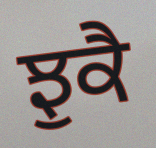
ਝੁਕੈ